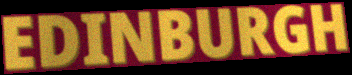
EDINBURGH